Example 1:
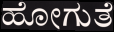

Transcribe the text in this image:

ಹೋಗುತೆ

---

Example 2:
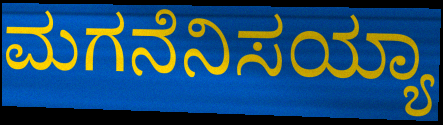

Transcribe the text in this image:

ಮಗನೆನಿಸಯ್ಯಾ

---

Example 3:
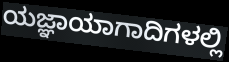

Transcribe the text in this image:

ಯಜ್ಞಾಯಾಗಾದಿಗಳಲ್ಲಿ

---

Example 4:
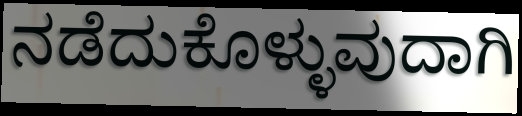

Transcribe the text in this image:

ನಡೆದುಕೊಳ್ಳುವುದಾಗಿ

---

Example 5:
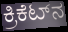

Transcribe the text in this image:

ಕ್ರಿಕೆಟ್‌ನ